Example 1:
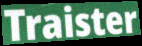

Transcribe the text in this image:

Traister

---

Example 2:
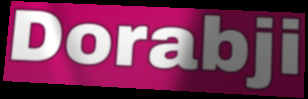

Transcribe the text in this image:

Dorabji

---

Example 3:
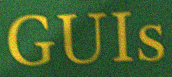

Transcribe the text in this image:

GUIs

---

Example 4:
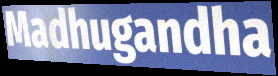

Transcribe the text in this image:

Madhugandha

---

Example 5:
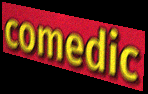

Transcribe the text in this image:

comedic